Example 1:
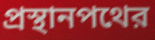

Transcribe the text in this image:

প্রস্থানপথের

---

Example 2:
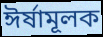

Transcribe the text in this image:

ঈর্ষামূলক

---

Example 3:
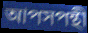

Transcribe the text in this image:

আপসপন্থী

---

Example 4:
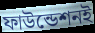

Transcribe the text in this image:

ফাউন্ডেশনই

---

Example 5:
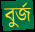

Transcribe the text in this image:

বুর্জ